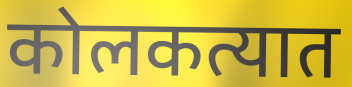
कोलकत्यात